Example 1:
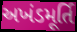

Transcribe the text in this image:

અખંડમૂર્તિ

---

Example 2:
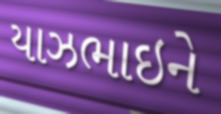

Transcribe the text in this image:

યાઝભાઇને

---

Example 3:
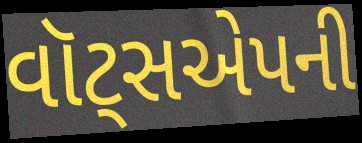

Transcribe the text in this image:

વૉટ્સએપની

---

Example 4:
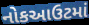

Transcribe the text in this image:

નોકઆઉટમાં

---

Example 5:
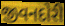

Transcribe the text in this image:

જીવનદોરી